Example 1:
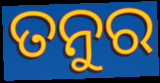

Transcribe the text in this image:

ତନୁର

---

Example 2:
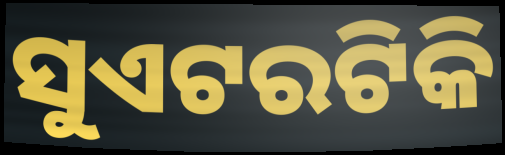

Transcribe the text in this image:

ସୁଏଟରଟିକି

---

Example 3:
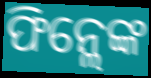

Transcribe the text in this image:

ଫିନ୍ଲେଙ୍କ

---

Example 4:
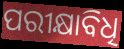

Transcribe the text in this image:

ପରୀକ୍ଷାବିଧି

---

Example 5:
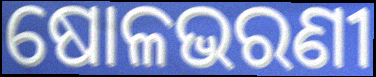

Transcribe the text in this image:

ଷୋଳଭରଣୀ